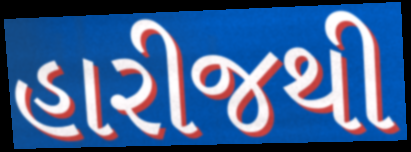
હારીજથી